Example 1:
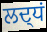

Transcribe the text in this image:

ਲਦ੍ਧਂ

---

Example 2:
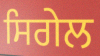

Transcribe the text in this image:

ਸਿਗੇਲ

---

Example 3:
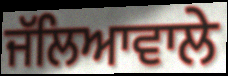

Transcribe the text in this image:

ਜੱਲਿਆਵਾਲੇ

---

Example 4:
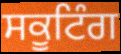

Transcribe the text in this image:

ਸਕੂਟਿੰਗ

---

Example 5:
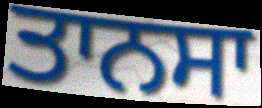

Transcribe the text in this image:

ਤਾਨਸਾ